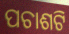
ପଚାଶଟି